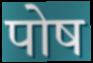
पोष